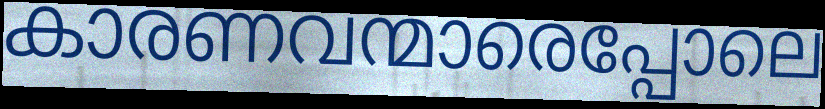
കാരണവന്മാരെപ്പോലെ